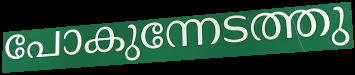
പോകുന്നേടത്തു